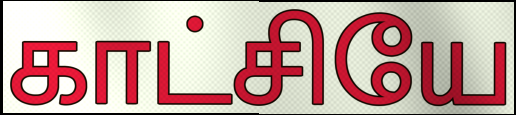
காட்சியே